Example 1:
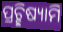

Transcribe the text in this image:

ପ୍ରଚ୍ଛିଷ୍ୟାମି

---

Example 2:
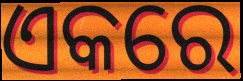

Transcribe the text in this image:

ଏକରେ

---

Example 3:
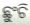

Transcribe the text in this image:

ଛୁଂଚି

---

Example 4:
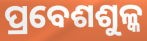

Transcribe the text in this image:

ପ୍ରବେଶଶୁଳ୍କ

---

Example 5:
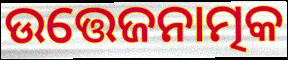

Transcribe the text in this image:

ଉତ୍ତେଜନାତ୍ମକ